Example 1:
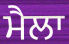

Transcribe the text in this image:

ਮੈਲਾ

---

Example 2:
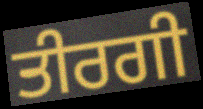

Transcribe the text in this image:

ਤੀਰਗੀ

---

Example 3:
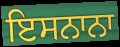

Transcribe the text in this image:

ਇਸਨਾਨਾ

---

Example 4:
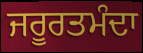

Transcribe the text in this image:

ਜਰੂਰਤਮੰਦਾ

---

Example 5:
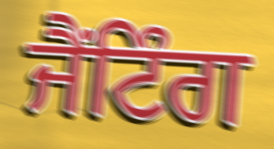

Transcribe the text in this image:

ਜੈਂਟਿੰਗ